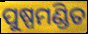
ପୁଷ୍ପମଣ୍ଡିତ